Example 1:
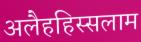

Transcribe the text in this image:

अलैहहिस्सलाम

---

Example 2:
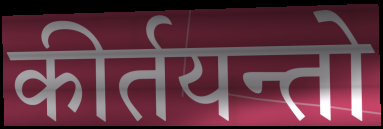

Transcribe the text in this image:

कीर्तयन्तो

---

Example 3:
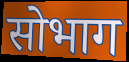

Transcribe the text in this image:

सोभाग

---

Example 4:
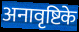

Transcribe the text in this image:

अनावृष्टिके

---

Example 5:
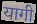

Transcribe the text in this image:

यागी